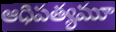
ఆధిపత్యమూ